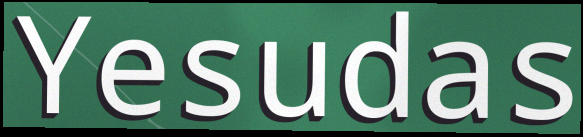
Yesudas